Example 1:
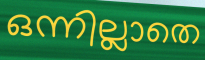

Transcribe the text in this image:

ഒന്നില്ലാതെ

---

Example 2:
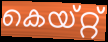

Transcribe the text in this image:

കെയ്റ്റ്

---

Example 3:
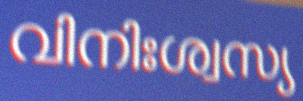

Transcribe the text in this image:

വിനിഃശ്വസ്യ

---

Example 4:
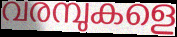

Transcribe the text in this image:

വരമ്പുകളെ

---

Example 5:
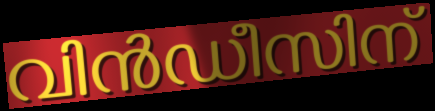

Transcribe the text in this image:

വിൻഡീസിന്